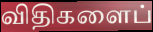
விதிகளைப்